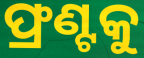
ଫ୍ରଣ୍ଟକୁ